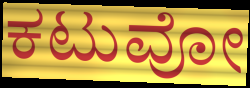
ಕಟುವೋ